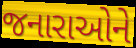
જનારાઓને